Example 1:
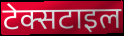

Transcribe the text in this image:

टेक्सटाइल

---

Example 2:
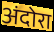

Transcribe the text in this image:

अंदोरा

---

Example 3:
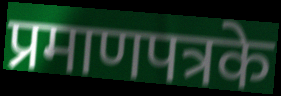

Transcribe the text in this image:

प्रमाणपत्रके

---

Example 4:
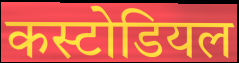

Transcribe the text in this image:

कस्टोडियल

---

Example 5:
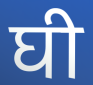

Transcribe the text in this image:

घी